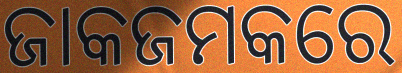
ଜାକଜମକରେ